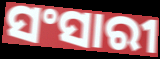
ସଂସାରୀ